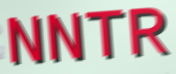
NNTR